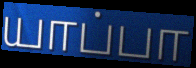
யாப்பா